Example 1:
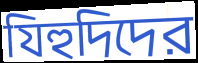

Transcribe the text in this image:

যিহুদিদের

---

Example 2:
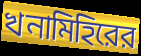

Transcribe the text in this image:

খনামিহিরের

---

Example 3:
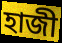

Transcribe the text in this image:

হাজী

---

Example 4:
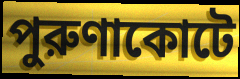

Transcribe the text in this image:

পুরুণাকোটে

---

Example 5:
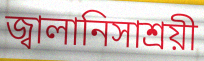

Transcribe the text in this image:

জ্বালানিসাশ্রয়ী